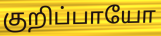
குறிப்பாயோ